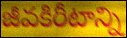
జీవకిరీటాన్ని